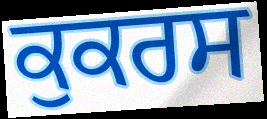
ਕੁਕਰਸ